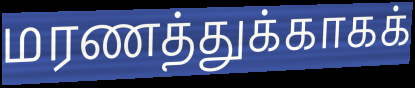
மரணத்துக்காகக்